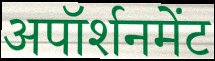
अपॉर्शनमेंट